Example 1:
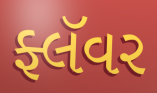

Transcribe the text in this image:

ફ્લૅવર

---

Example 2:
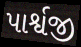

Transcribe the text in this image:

પાર્શ્વજી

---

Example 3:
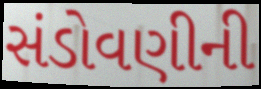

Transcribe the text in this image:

સંડોવણીની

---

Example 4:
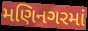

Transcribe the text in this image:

મણિનગરમાં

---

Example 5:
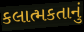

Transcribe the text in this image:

કલાત્મકતાનું